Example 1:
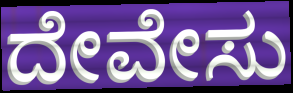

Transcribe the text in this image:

ದೇವೇಸು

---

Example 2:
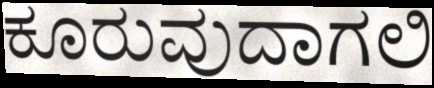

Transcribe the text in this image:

ಕೂರುವುದಾಗಲಿ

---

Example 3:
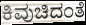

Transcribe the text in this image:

ಕಿವುಚಿದಂತೆ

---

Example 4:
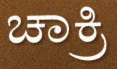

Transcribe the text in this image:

ಚಾಕ್ರಿ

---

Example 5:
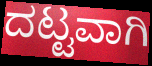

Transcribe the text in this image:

ದಟ್ಟವಾಗಿ